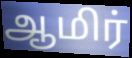
ஆமிர்